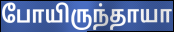
போயிருந்தாயா